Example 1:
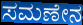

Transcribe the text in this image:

ಸಮಣೇನ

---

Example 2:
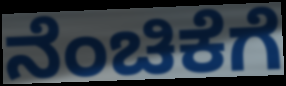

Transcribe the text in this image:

ನೆಂಚಿಕೆಗೆ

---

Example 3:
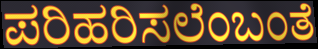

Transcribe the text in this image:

ಪರಿಹರಿಸಲೆಂಬಂತೆ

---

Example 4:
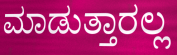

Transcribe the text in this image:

ಮಾಡುತ್ತಾರಲ್ಲ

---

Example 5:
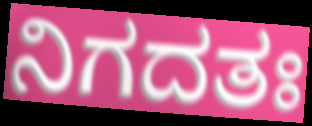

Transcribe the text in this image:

ನಿಗದತಃ